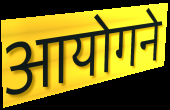
आयोगने